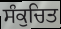
ਸੰਕੁਚਿਤ